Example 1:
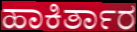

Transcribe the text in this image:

ಹಾಕಿರ್ತಾರ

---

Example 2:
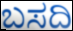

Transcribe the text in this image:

ಬಸದಿ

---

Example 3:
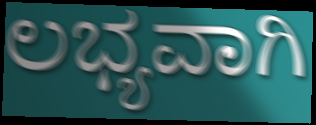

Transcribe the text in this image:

ಲಭ್ಯವಾಗಿ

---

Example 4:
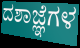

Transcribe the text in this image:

ದಶಾಜ್ಞೆಗಳ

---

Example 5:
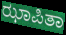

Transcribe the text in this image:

ಝಾಪಿತಾ